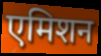
एमिशन